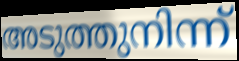
അടുത്തുനിന്ന്